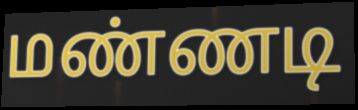
மண்ணடி